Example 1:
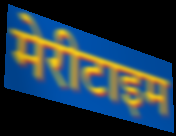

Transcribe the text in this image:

मेरीटाइम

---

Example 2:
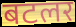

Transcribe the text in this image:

बटलर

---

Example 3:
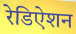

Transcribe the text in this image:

रेडिऐशन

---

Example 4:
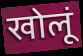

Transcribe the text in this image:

खोलूं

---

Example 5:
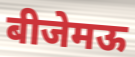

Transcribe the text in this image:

बीजेमऊ